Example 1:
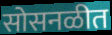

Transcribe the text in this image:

सोसनळीत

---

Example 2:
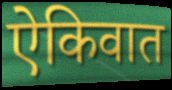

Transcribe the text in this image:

ऐकिवात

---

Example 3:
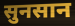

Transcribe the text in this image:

सुनसान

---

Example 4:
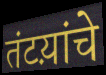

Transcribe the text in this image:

तंटय़ांचे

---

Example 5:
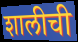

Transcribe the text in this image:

शालीची